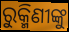
ରୁକ୍ମିଣୀଙ୍କୁ